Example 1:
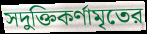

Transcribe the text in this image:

সদুক্তিকর্ণামৃতের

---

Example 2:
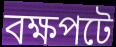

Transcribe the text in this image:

বক্ষপটে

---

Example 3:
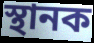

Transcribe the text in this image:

স্থানক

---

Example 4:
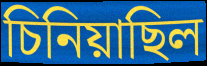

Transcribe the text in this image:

চিনিয়াছিল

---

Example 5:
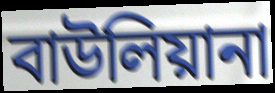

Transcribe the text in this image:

বাউলিয়ানা